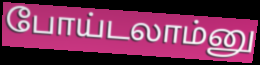
போய்டலாம்னு